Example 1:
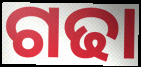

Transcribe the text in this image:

ଗଢା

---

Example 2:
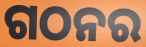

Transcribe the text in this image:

ଗଠନର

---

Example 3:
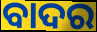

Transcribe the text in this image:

ବାଦର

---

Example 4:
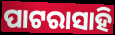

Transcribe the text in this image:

ପାଟରାସାହି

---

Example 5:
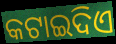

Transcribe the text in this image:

କଟାଇଦିଏ